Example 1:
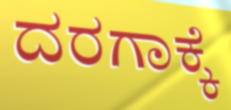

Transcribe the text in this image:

ದರಗಾಕ್ಕೆ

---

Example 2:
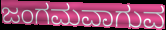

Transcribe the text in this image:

ಜಂಗಮವಾಗುವ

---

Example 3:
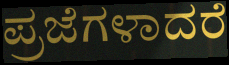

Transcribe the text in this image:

ಪ್ರಜೆಗಳಾದರೆ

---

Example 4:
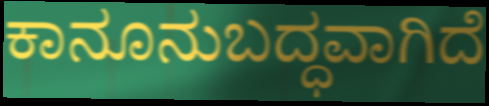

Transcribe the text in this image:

ಕಾನೂನುಬದ್ಧವಾಗಿದೆ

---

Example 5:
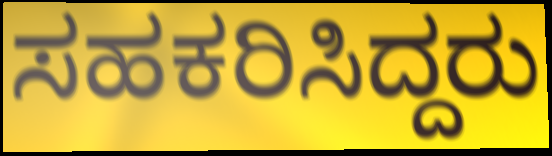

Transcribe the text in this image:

ಸಹಕರಿಸಿದ್ದರು